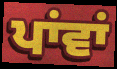
ਪਾਂਵਾਂ